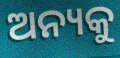
ଅନ୍ୟକୁ